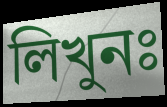
লিখুনঃ